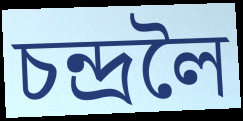
চন্দ্ৰলৈ